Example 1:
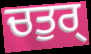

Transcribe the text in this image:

ਚਤੁਰ੍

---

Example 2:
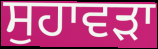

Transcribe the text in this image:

ਸੁਹਾਵੜਾ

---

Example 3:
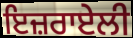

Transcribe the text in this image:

ਇਜ਼ਰਾਏਲੀ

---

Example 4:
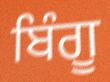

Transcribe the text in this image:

ਬਿੰਗੂ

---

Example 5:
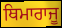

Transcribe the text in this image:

ਥਿਮਾਰਾਜੂ